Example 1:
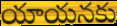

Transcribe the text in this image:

యాయనకు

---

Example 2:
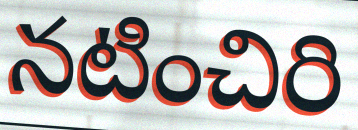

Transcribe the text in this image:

నటించిరి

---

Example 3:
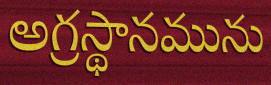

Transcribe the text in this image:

అగ్రస్థానమును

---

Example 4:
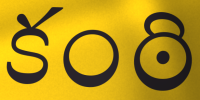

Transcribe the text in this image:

కంఠి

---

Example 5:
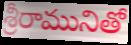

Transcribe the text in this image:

శ్రీరామునితో